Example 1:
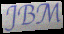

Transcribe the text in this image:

JBM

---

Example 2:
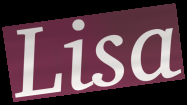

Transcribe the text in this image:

Lisa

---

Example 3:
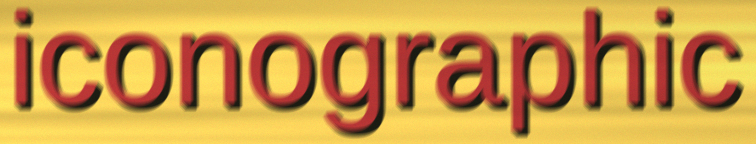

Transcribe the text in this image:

iconographic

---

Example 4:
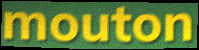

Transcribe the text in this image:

mouton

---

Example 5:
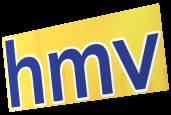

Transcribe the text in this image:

hmv